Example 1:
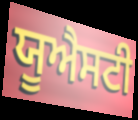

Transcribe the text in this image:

ਯੂਐਸਟੀ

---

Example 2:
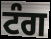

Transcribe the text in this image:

ਟੰਗ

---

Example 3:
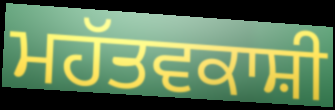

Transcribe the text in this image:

ਮਹੱਤਵਕਾਸ਼ੀ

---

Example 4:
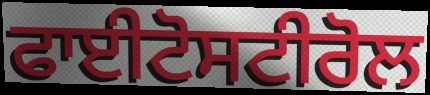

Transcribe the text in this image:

ਫਾਈਟੋਸਟੀਰੋਲ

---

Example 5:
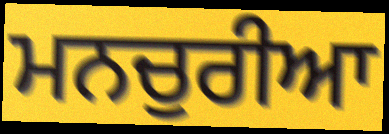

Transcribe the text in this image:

ਮਨਚੁਰੀਆ